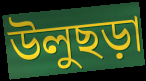
উলুছড়া